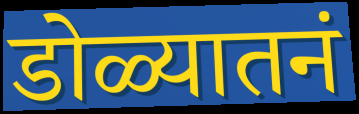
डोळ्यातनं